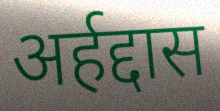
अर्हद्दास